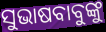
ସୁଭାଷବାବୁଙ୍କୁ